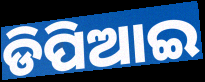
ଡିପିଆଇ